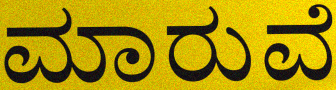
ಮಾರುವೆ